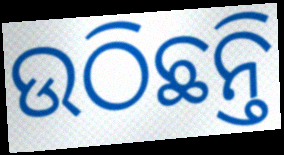
ଉଠିଛନ୍ତି